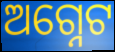
ଅଗ୍ନେଟ